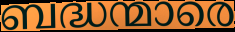
ബദ്ധന്മാരെ